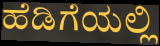
ಹೆಡಿಗೆಯಲ್ಲಿ